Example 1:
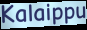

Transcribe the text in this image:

Kalaippu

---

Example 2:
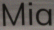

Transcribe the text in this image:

Mia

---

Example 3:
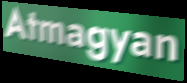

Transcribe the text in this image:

Atmagyan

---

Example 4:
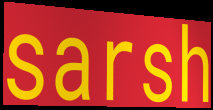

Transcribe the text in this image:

sarsh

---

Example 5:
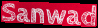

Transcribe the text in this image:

Sanwad